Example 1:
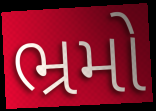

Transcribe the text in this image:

ભ્રમો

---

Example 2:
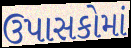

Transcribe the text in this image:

ઉપાસકોમાં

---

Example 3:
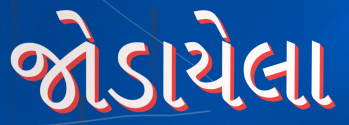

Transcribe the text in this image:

જોડાયેલા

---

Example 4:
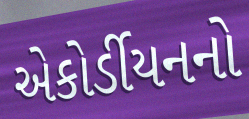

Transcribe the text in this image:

એકોર્ડીયનનો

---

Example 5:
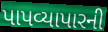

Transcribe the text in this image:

પાપવ્યાપારની